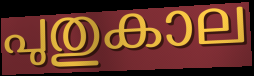
പുതുകാല